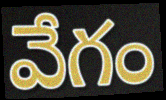
వేగం